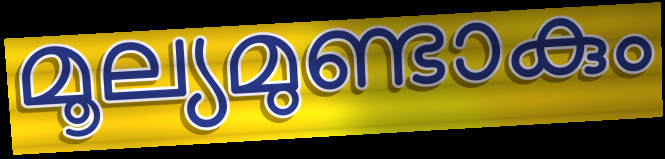
മൂല്യമുണ്ടാകും